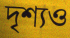
দৃশ্যও